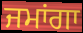
ਜਮਾਂਗਾ